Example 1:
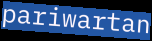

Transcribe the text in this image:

pariwartan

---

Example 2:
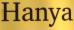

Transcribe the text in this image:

Hanya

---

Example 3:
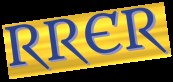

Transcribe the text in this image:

RRER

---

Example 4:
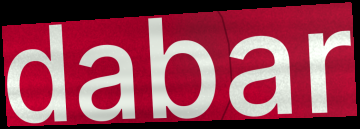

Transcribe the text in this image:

dabar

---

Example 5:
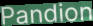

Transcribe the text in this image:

Pandion